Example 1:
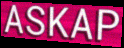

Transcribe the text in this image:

ASKAP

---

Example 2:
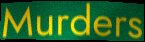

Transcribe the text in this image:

Murders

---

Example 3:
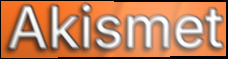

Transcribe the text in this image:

Akismet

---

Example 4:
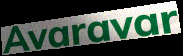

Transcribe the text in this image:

Avaravar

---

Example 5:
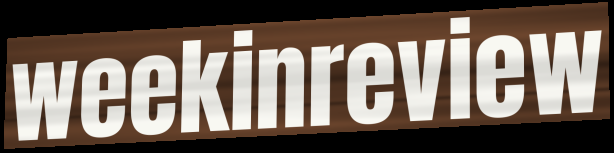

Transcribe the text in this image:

weekinreview